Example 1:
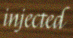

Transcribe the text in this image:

injected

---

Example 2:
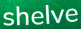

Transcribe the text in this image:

shelve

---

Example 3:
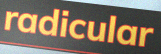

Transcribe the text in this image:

radicular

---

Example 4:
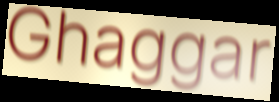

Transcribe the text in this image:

Ghaggar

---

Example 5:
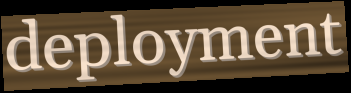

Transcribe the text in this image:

deployment